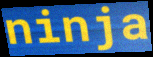
ninja